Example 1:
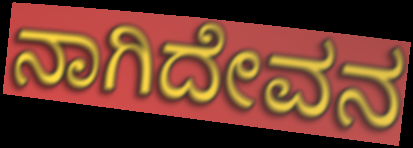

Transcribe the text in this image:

ನಾಗಿದೇವನ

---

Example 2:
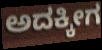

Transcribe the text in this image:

ಅದಕ್ಕೀಗ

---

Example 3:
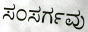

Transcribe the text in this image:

ಸಂಸರ್ಗವು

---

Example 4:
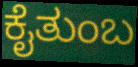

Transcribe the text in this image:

ಕೈತುಂಬ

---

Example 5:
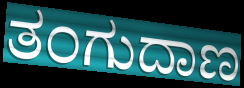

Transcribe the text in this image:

ತಂಗುದಾಣ